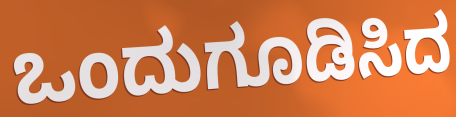
ಒಂದುಗೂಡಿಸಿದ